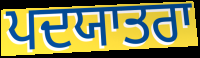
ਪਦਯਾਤਰਾ